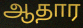
ஆதார